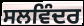
ਸਲਵਿੰਦਰ